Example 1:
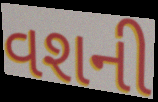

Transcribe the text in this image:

વશની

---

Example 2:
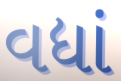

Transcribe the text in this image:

વદ્યાં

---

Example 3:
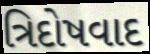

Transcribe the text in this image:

ત્રિદોષવાદ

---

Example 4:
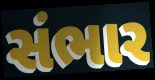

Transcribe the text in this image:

સંભાર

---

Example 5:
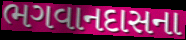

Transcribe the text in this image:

ભગવાનદાસના